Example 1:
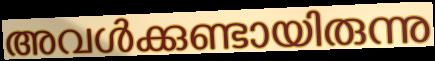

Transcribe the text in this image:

അവൾക്കുണ്ടായിരുന്നു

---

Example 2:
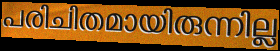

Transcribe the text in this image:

പരിചിതമായിരുന്നില്ല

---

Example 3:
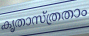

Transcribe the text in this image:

കൃതാസ്ത്രതാം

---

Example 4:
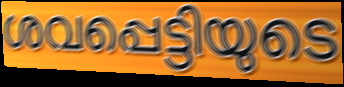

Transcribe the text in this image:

ശവപ്പെട്ടിയുടെ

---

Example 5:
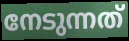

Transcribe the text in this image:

നേടുന്നത്